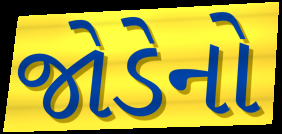
જોડેનો